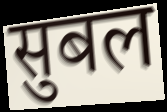
सुबल